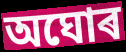
অঘোৰ